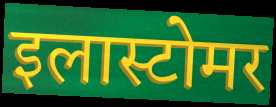
इलास्टोमर